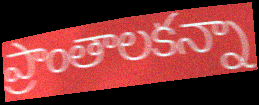
ప్రాంతాలకన్నా